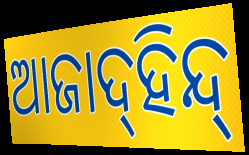
ଆଜାଦ୍‍ହିନ୍ଦ୍